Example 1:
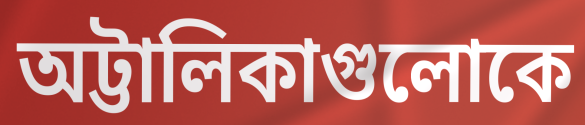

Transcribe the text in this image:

অট্টালিকাগুলোকে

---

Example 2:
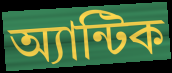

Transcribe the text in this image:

অ্যান্টিক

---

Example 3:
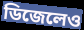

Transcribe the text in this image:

ডিজেলেও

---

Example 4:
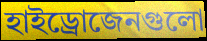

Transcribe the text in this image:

হাইড্রোজেনগুলো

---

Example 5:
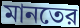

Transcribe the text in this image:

মানতের